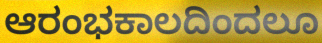
ಆರಂಭಕಾಲದಿಂದಲೂ